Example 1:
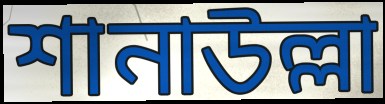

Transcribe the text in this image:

শানাউল্লা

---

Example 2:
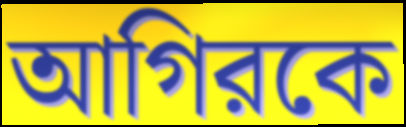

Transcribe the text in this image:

আগিরকে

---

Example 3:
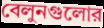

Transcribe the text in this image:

বেলুনগুলোর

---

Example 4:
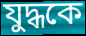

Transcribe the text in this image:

যুদ্ধকে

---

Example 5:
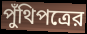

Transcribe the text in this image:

পুঁথিপত্রের